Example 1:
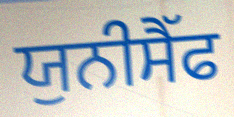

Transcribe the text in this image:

ਯੁਨੀਸੈੱਫ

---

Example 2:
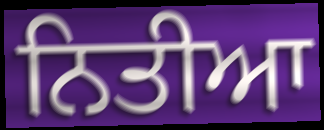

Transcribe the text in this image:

ਨਿਤੀਆ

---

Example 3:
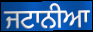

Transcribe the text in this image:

ਜਟਾਨੀਆ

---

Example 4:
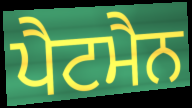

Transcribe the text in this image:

ਪੈਟਮੈਨ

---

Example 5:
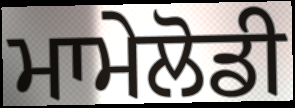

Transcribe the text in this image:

ਮਾਮੇਲੋਡੀ